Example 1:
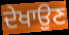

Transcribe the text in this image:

ਦੇਖਾਉਣ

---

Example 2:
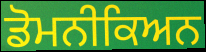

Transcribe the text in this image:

ਡੋਮਨੀਕਿਅਨ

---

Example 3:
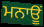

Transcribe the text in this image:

ਮਨਾਊਂ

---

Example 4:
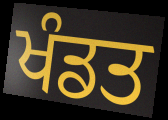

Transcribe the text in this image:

ਖੰਡਤ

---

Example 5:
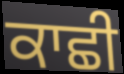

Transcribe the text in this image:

ਕਾਛੀ